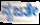
ಸೃಜತೇ